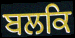
ਬਲਕਿ